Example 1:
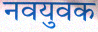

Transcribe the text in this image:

नवयुवक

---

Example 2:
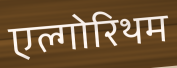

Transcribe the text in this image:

एल्गोरिथम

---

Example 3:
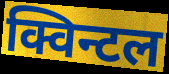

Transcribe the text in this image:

क्विन्टल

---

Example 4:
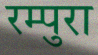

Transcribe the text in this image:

रम्पुरा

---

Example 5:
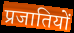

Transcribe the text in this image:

प्रजातियों